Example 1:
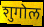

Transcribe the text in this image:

शुगोल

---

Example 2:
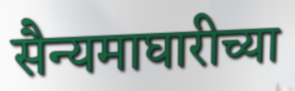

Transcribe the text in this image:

सैन्यमाघारीच्या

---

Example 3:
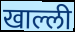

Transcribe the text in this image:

खाल्ली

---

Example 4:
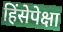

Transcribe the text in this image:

हिंसेपेक्षा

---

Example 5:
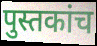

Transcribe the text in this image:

पुस्तकांच